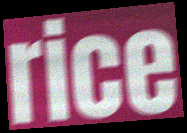
rice